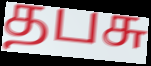
தபசு